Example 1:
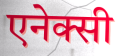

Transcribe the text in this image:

एनेक्‍सी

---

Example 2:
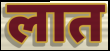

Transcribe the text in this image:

लात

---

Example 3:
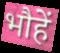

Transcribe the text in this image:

भौहें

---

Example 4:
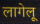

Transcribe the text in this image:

लागेलू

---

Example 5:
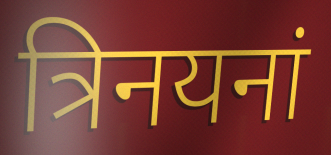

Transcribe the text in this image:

त्रिनयनां